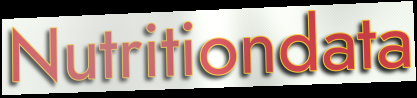
Nutritiondata